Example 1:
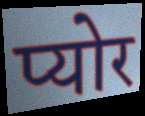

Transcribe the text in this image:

प्योर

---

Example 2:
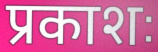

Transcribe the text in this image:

प्रकाशः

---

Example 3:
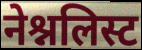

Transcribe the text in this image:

नेश्नलिस्ट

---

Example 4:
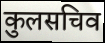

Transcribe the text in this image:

कुलसचिव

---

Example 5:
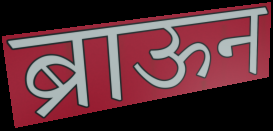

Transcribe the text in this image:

ब्राऊन